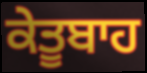
ਕੇਤੂਬਾਹ